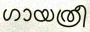
ഗായത്രീ